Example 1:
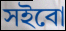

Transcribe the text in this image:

সইবো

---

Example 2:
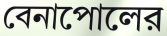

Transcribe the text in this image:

বেনাপোলের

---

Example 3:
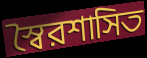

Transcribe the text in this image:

স্বৈরশাসিত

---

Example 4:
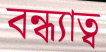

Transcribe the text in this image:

বন্ধ্যাত্ব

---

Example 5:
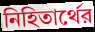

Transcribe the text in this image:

নিহিতার্থের